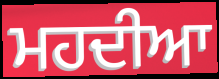
ਮਹਦੀਆ